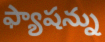
ఫ్యాషన్ను